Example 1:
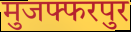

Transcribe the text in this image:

मुजफ्फरपुर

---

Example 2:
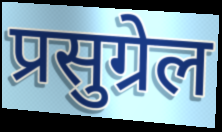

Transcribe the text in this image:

प्रसुग्रेल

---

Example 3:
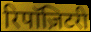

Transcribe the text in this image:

रिपॉज़िटरी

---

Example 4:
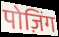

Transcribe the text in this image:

पोज़िंग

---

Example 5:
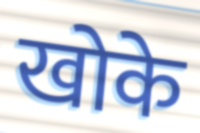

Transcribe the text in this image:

खोके